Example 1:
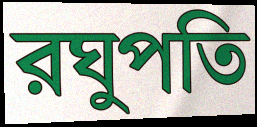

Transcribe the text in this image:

রঘুপতি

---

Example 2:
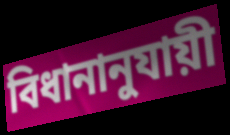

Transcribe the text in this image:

বিধানানুযায়ী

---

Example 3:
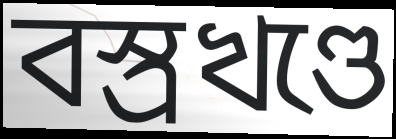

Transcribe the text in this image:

বস্ত্রখণ্ডে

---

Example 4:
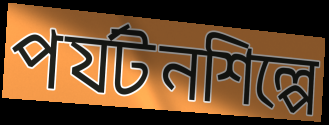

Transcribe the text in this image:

পর্যটনশিল্পে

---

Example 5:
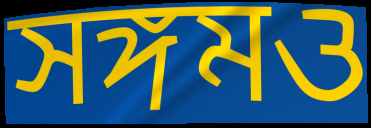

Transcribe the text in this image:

সঙ্গমও